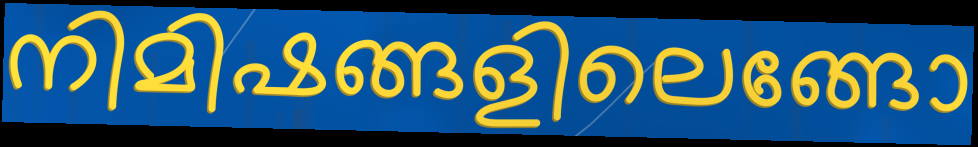
നിമിഷങ്ങളിലെങ്ങോ